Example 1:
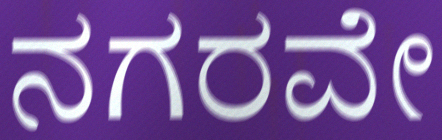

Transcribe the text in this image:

ನಗರವೇ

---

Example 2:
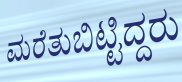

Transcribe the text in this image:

ಮರೆತುಬಿಟ್ಟಿದ್ದರು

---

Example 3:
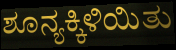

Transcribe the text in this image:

ಶೂನ್ಯಕ್ಕಿಳಿಯಿತು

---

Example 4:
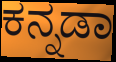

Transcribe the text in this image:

ಕನ್ನಡಾ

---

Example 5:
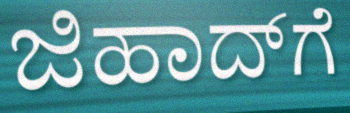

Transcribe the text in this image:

ಜಿಹಾದ್‌ಗೆ